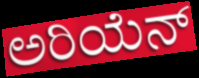
ಅರಿಯೆನ್